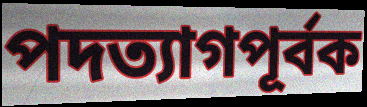
পদত্যাগপূর্বক